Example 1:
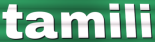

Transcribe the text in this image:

tamili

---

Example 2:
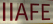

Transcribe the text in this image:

IIAFE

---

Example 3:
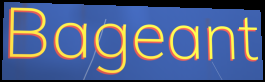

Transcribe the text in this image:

Bageant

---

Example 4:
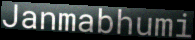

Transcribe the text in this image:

Janmabhumi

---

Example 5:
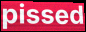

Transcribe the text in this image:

pissed